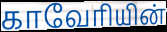
காவேரியின்